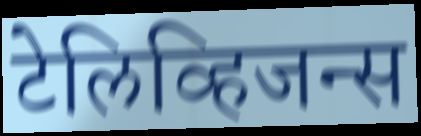
टेलिव्हिजन्स